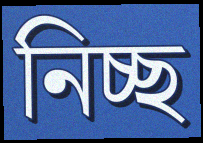
নিচ্ছ